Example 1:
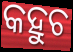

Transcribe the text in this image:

କହୁଚ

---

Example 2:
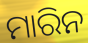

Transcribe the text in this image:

ମାରିନ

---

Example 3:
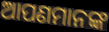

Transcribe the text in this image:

ଆପଣମାନଙ୍କ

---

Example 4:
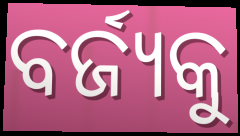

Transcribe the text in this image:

ବର୍ଜ୍ୟକୁ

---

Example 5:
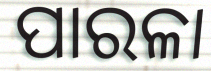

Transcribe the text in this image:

ପାରଳା